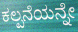
ಕಲ್ಪನೆಯನ್ನೇ